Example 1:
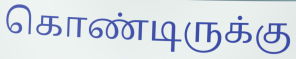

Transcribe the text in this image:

கொண்டிருக்கு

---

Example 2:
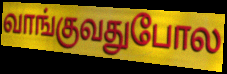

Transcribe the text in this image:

வாங்குவதுபோல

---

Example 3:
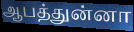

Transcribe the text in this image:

ஆபத்துன்னா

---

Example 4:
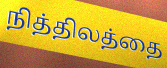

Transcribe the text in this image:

நித்திலத்தை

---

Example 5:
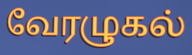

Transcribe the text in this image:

வேரழுகல்